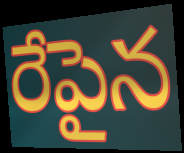
రేపైన